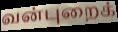
வன்புறைக்